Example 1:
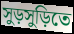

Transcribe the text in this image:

সুড়সুড়িতে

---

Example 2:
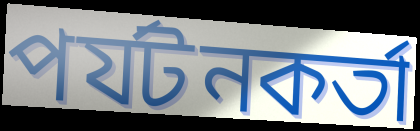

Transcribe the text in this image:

পর্যটনকর্তা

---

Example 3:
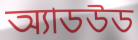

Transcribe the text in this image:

অ্যাডউড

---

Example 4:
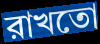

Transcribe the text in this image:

রাখতো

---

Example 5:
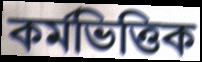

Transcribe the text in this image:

কর্মভিত্তিক